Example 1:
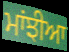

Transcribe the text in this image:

ਮਾਂਝੀਆ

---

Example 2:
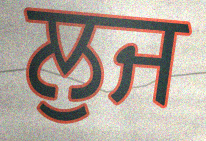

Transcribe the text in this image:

ਲੁਜ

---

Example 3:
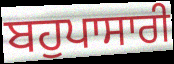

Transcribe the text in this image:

ਬਹੁਪਾਸਾਰੀ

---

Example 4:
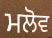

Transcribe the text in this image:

ਮਲੋਵ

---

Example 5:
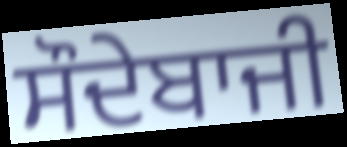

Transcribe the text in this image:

ਸੌਦੇਬਾਜੀ